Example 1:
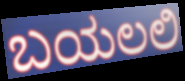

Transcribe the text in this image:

ಬಯಲಲಿ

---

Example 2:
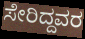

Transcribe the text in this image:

ಸೇರಿದ್ದವರ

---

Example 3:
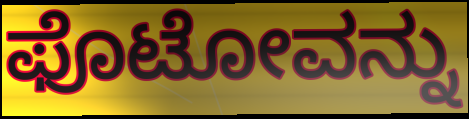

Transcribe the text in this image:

ಫೊಟೋವನ್ನು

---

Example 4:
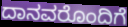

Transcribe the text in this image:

ದಾನವರೊಂದಿಗೆ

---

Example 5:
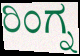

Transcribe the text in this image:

ರಿಂಗ್ನ